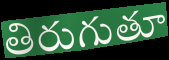
తిరుగుతూ